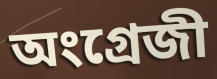
অংগ্ৰেজী